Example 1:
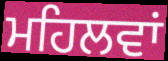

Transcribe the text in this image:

ਮਹਿਲਵਾਂ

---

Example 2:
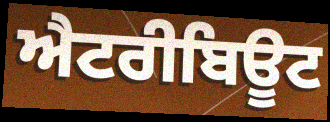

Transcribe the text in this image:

ਐਟਰੀਬਿਊਟ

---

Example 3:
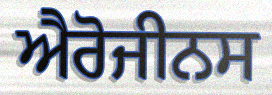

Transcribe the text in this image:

ਐਰੋਜੀਨਸ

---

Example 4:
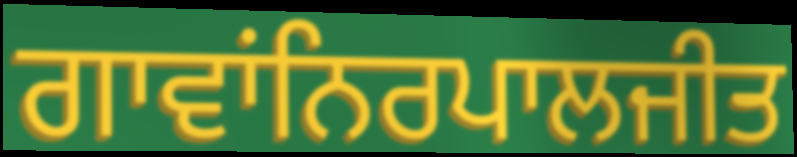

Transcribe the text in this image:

ਗਾਵਾਂਨਿਰਪਾਲਜੀਤ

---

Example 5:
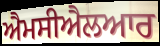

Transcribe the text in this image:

ਐਮਸੀਐਲਆਰ